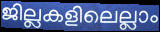
ജില്ലകളിലെല്ലാം